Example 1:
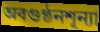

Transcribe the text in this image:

অবগুণ্ঠনশূন্যা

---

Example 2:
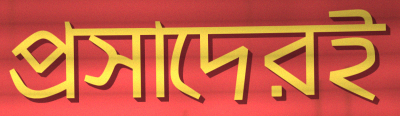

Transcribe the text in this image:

প্রসাদেরই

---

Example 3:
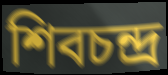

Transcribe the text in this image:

শিবচন্দ্র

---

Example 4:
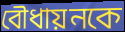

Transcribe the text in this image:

বৌধায়নকে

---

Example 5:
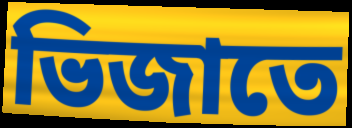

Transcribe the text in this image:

ভিজাতে